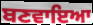
ਬਣਵਾਇਆ